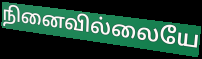
நினைவில்லையே